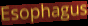
Esophagus